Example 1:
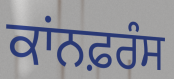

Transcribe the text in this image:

ਕਾਂਨਫ਼ਰੰਸ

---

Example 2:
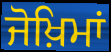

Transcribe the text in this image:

ਜੋਖ਼ਿਮਾਂ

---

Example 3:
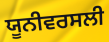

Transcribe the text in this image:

ਯੂਨੀਵਰਸਲੀ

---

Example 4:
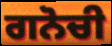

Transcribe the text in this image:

ਗਨੋਚੀ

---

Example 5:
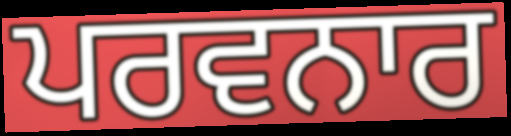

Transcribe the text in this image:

ਪਰਵਨਾਰ